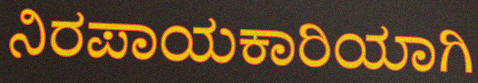
ನಿರಪಾಯಕಾರಿಯಾಗಿ